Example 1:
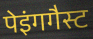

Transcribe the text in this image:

पेइंगगैस्ट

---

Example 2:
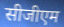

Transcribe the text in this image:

सीजीएम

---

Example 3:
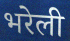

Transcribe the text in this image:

भरेली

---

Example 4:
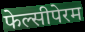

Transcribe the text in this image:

फेल्सीपेरम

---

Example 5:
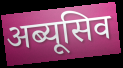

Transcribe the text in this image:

अब्यूसिव